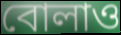
বোলাও